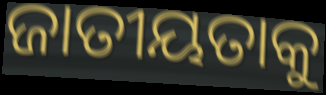
ଜାତୀୟତାକୁ